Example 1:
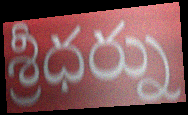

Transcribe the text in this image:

శ్రీధర్ను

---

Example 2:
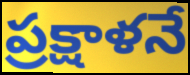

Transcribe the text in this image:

ప్రక్షాళనే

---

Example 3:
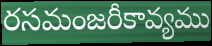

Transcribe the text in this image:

రసమంజరీకావ్యము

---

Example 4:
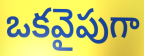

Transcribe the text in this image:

ఒకవైపుగా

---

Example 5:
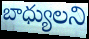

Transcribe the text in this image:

బాధ్యులని